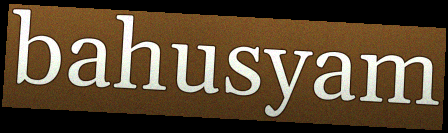
bahusyam